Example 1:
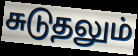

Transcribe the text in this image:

சுடுதலும்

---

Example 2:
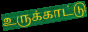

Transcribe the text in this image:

உருக்காட்டு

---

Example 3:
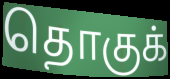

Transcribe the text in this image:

தொகுக்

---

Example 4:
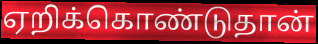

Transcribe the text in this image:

ஏறிக்கொண்டுதான்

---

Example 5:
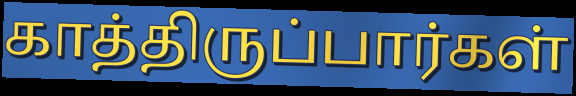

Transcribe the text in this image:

காத்திருப்பார்கள்